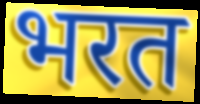
भरत